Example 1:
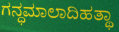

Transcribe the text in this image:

ಗನ್ಧಮಾಲಾದಿಹತ್ಥಾ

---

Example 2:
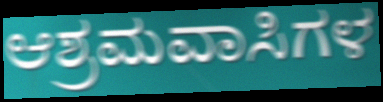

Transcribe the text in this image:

ಆಶ್ರಮವಾಸಿಗಳ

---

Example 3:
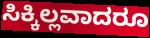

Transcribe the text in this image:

ಸಿಕ್ಕಿಲ್ಲವಾದರೂ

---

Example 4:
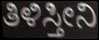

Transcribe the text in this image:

ತಿಳಿಸ್ತೀನಿ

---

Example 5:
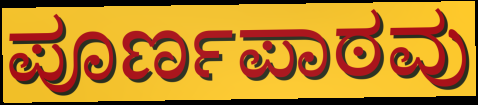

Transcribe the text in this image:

ಪೂರ್ಣಪಾಠವು